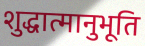
शुद्धात्मानुभूति